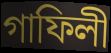
গাফিলী